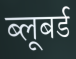
ब्लूबर्ड